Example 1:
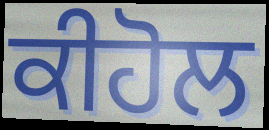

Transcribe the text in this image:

ਕੀਹੋਲ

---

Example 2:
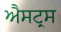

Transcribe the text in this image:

ਐਸਟ੍ਰਸ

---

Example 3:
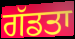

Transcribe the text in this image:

ਗੱਡਤਾ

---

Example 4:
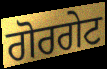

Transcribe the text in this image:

ਗੋਰਗੇਟ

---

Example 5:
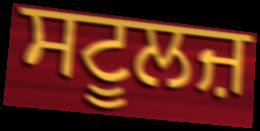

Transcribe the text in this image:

ਸਟੂਲਜ਼